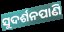
ସୁଦର୍ଶନପାଣି